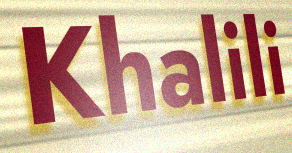
Khalili